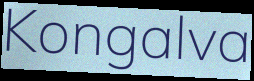
Kongalva